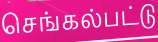
செங்கல்பட்டு